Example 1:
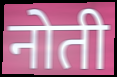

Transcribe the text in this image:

नोती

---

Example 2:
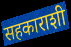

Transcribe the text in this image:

सहकाराशी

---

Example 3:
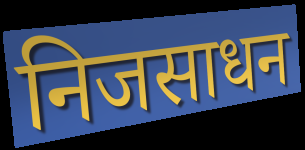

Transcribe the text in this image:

निजसाधन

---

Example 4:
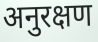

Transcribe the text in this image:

अनुरक्षण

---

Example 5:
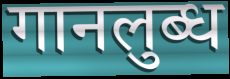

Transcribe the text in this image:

गानलुब्ध